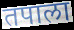
तपाला